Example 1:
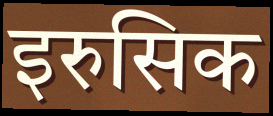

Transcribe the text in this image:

इरुसिक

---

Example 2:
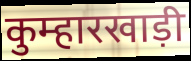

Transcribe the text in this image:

कुम्हारखाड़ी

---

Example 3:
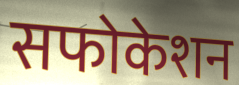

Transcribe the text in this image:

सफोकेशन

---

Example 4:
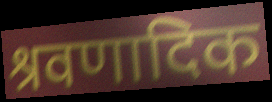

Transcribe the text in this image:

श्रवणादिक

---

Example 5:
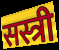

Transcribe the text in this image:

सस्त्री